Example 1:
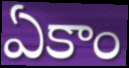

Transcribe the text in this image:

ఏకాం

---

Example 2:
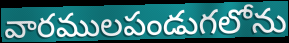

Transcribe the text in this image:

వారములపండుగలోను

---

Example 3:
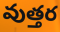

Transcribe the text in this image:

వుత్తర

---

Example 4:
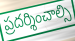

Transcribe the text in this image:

ప్రదర్శించాల్సి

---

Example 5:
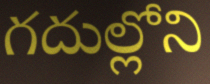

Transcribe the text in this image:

గదుల్లోని